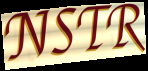
NSTR